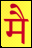
मै